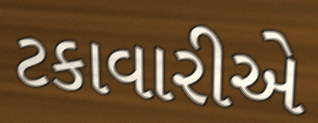
ટકાવારીએ